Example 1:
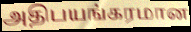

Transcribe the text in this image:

அதிபயங்கரமான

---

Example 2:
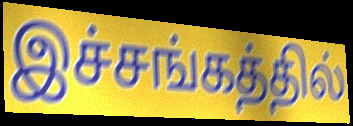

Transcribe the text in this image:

இச்சங்கத்தில்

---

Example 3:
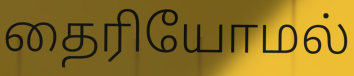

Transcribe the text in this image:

தைரியோமல்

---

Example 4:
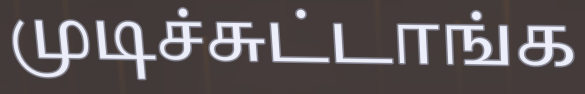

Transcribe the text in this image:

முடிச்சுட்டாங்க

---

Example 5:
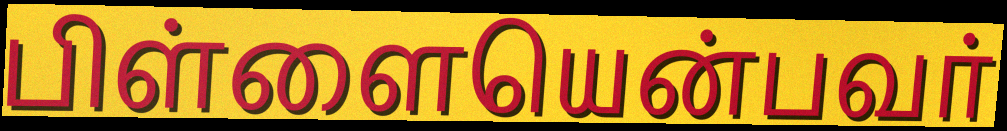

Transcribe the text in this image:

பிள்ளையென்பவர்